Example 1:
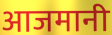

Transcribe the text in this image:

आजमानी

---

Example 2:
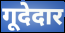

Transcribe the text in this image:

गूदेदार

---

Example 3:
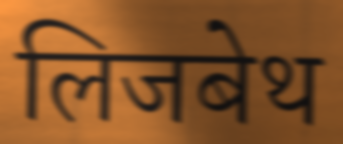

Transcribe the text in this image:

लिजबेथ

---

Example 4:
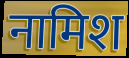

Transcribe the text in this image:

नामिश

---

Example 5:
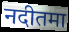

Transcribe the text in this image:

नदीतमा